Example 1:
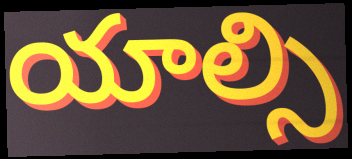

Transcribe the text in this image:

యాల్సి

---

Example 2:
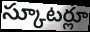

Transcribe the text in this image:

స్కూటర్లూ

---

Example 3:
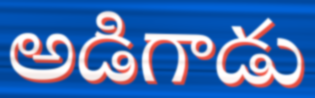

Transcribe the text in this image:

అడిగాడు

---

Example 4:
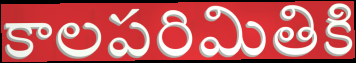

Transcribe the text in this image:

కాలపరిమితికి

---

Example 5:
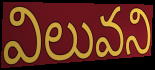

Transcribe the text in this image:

విలువని